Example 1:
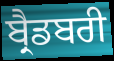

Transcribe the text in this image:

ਬ੍ਰੈਡਬਰੀ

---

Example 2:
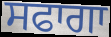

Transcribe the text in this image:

ਸਫਾਗਾ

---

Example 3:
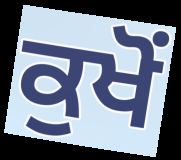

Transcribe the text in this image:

ਕੁਖੋਂ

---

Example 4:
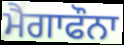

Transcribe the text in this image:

ਮੈਗਾਫੌਨਾ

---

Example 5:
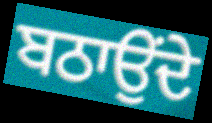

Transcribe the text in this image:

ਬਠਾਉਂਦੇ